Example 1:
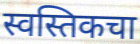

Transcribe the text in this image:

स्वस्तिकचा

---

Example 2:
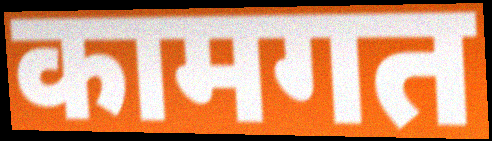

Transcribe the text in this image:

कामगत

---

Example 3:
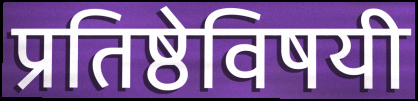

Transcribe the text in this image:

प्रतिष्ठेविषयी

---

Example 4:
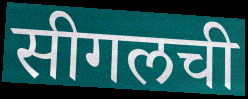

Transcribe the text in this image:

सीगलची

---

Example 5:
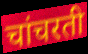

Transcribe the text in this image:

चांचरती